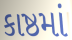
કાષ્ઠમાં